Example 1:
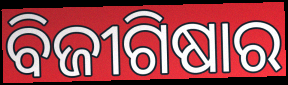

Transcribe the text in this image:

ବିଜୀଗିଷାର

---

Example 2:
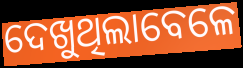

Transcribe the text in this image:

ଦେଖୁଥିଲାବେଳେ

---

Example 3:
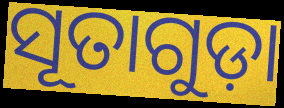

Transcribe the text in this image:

ସୂତାଗୁଡ଼ା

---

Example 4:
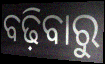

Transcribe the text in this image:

ବଢ଼ିବାରୁ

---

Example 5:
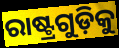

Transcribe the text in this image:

ରାଷ୍ଟ୍ରଗୁଡ଼ିକୁ